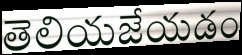
తెలియజేయడం